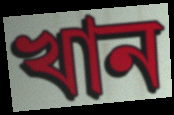
খান